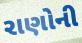
રાણોની